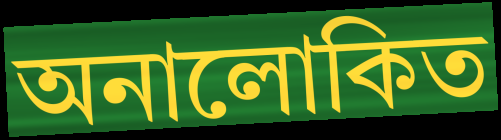
অনালোকিত